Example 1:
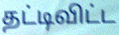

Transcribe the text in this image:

தட்டிவிட்ட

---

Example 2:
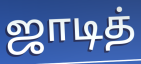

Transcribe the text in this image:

ஜாடித்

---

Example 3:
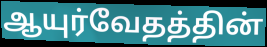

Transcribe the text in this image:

ஆயுர்வேதத்தின்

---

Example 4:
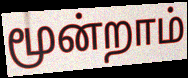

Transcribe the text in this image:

மூன்றாம்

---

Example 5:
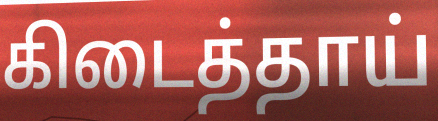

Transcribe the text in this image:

கிடைத்தாய்